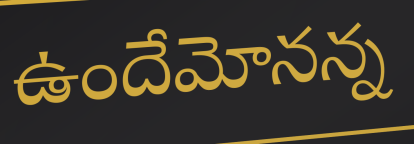
ఉందేమోనన్న